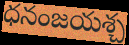
ధనంజయశ్చ